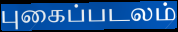
புகைப்படலம்